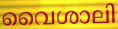
വൈശാലി